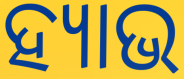
ହ୍ୟାଭ